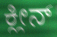
ಕ್ಲೀನ್